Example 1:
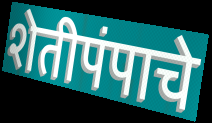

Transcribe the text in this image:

शेतीपंपाचे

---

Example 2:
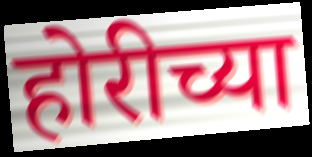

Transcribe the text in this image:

होरीच्या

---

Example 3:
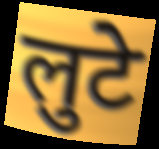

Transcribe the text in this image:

लुटे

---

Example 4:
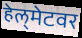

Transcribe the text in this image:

हेल्मेटवर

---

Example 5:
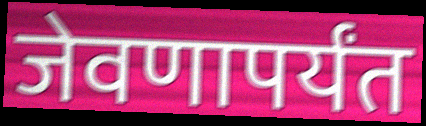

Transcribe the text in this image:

जेवणापर्यंत